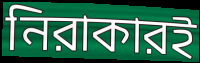
নিরাকারই